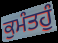
ਕੁਮੰਤਹੁੰ